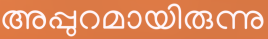
അപ്പുറമായിരുന്നു